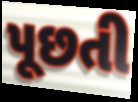
પૂછતી